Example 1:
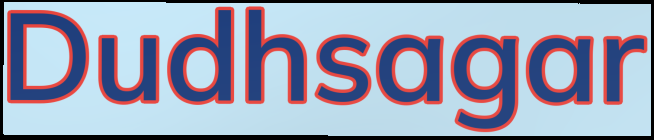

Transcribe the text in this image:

Dudhsagar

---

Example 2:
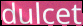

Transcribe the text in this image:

dulcet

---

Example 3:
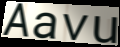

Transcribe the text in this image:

Aavu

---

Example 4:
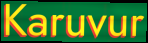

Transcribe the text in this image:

Karuvur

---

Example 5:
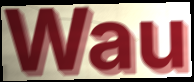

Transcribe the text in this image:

Wau